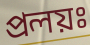
প্রলয়ঃ